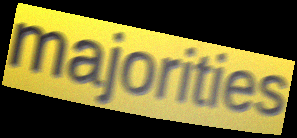
majorities